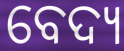
ବେଦ୍ୟ